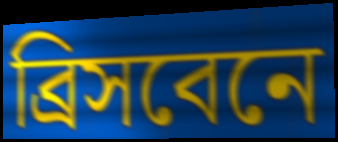
ব্রিসবেনে